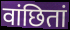
वांछितां